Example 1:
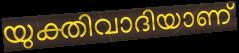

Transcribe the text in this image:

യുക്തിവാദിയാണ്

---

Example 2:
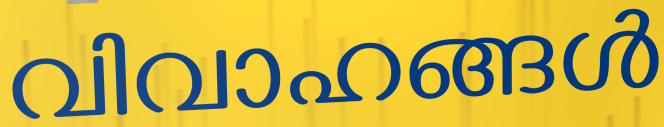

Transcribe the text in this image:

വിവാഹങ്ങൾ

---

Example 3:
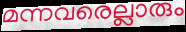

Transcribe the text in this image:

മന്നവരെല്ലാരും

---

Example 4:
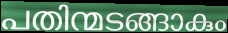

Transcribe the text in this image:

പതിന്മടങ്ങാകും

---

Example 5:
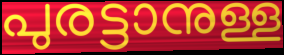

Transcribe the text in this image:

പുരട്ടാനുള്ള